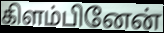
கிளம்பினேன்